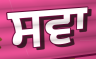
ਸਵਾ